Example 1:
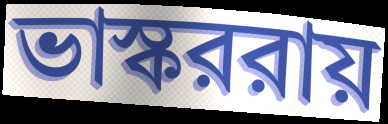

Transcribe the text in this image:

ভাস্কররায়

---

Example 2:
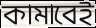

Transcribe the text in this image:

কামাবেই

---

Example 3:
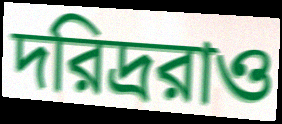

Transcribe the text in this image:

দরিদ্ররাও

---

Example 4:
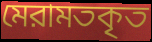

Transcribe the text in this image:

মেরামতকৃত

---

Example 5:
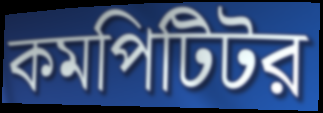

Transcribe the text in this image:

কমপিটিটর